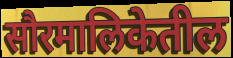
सौरमालिकेतील